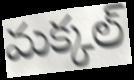
మక్కల్